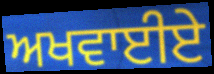
ਅਖਵਾਈਏ